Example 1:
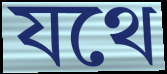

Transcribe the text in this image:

যথে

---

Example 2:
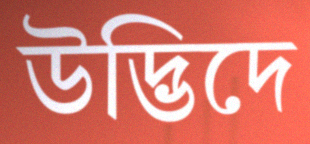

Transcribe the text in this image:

উদ্ভিদে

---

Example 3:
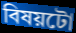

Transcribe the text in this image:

বিষয়টো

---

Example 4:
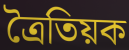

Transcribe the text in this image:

ত্ৰৈতিয়ক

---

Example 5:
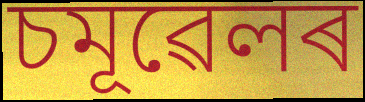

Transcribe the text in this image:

চমূৱেলৰ